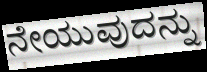
ನೇಯುವುದನ್ನು